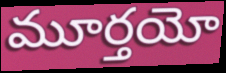
మూర్తయో